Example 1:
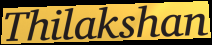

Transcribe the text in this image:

Thilakshan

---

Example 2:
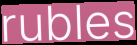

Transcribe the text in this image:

rubles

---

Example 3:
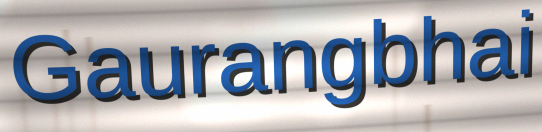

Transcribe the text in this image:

Gaurangbhai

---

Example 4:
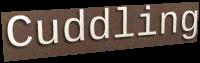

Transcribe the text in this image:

Cuddling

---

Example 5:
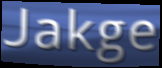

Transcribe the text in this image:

Jakge